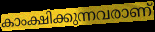
കാംക്ഷിക്കുന്നവരാണ്